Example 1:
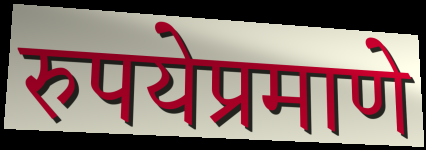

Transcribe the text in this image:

रुपयेप्रमाणे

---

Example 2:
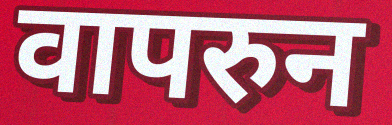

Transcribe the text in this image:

वापरुन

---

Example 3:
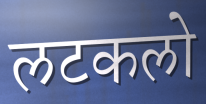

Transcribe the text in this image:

लटकलो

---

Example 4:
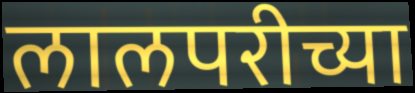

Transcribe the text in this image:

लालपरीच्या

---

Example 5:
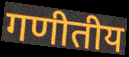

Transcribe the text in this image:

गणीतीय